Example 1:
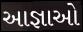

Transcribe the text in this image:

આજ્ઞાઓ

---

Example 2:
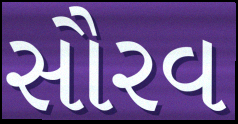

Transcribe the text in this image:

સૌરવ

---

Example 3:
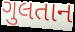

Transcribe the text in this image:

ગુલતાન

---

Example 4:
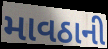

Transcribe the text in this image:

માવઠાની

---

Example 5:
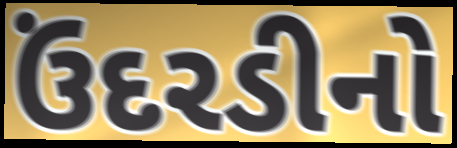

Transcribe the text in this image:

ઉંદરડીનો